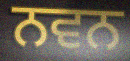
ਨਵਨ